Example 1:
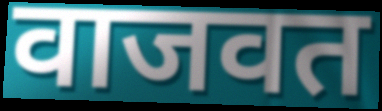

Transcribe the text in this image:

वाजवत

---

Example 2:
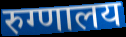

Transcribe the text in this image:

रुग्णालय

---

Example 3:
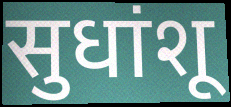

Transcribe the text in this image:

सुधांशू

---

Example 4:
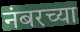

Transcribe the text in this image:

नंबरच्या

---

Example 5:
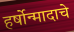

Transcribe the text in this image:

हर्षोन्मादाचे